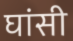
घांसी